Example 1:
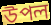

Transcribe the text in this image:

উপল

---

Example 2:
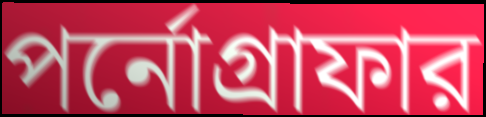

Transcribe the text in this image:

পর্নোগ্রাফার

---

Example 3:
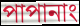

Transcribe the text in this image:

পাপানাং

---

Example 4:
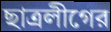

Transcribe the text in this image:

ছাত্রলীগের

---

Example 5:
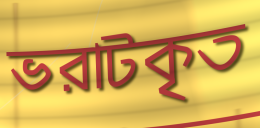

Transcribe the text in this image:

ভরাটকৃত